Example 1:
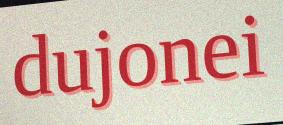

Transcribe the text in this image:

dujonei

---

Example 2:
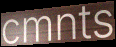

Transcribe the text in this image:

cmnts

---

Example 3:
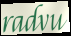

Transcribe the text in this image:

radvu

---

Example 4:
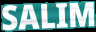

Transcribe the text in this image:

SALIM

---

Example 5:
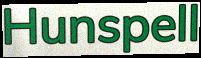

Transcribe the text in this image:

Hunspell